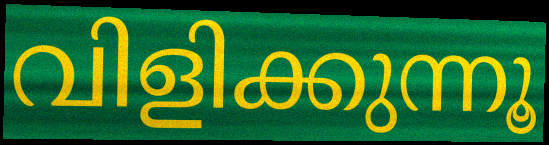
വിളിക്കുന്നൂ